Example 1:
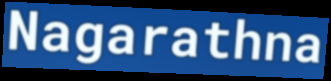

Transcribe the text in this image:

Nagarathna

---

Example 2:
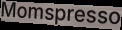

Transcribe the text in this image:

Momspresso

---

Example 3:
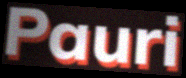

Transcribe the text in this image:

Pauri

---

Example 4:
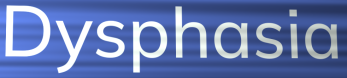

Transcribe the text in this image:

Dysphasia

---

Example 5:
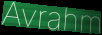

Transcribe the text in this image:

Avrahm